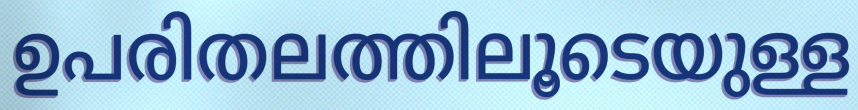
ഉപരിതലത്തിലൂടെയുള്ള